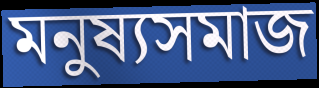
মনুষ্যসমাজ